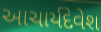
આચાર્યદેવેશ